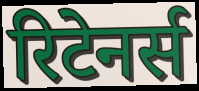
रिटेनर्स